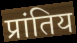
प्रांतिय